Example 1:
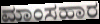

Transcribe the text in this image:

ಮಾಂಸಹಾರ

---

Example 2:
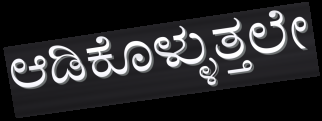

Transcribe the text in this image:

ಆಡಿಕೊಳ್ಳುತ್ತಲೇ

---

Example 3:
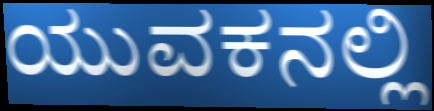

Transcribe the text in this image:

ಯುವಕನಲ್ಲಿ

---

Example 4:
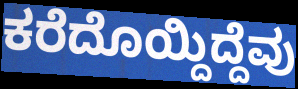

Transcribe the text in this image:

ಕರೆದೊಯ್ದಿದ್ದೆವು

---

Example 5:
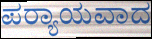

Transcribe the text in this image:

ಪರ‍್ಯಾಯವಾದ